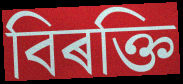
বিৰক্তি